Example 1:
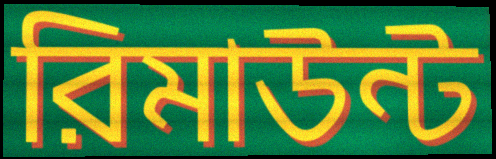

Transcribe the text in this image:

রিমাউন্ট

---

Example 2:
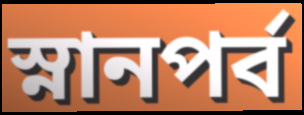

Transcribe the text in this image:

স্নানপর্ব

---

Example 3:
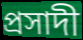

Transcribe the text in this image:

প্রসাদী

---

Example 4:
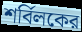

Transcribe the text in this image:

শর্বিলকের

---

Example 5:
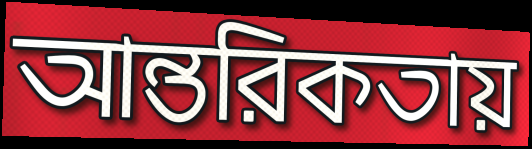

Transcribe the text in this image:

আন্তরিকতায়